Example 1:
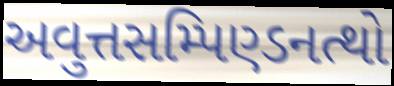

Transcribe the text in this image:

અવુત્તસમ્પિણ્ડનત્થો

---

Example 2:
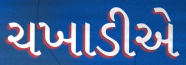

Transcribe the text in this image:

ચખાડીએ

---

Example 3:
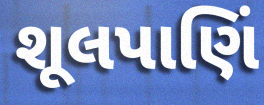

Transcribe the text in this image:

શૂલપાણિં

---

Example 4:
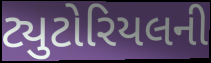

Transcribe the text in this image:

ટ્યુટોરિયલની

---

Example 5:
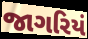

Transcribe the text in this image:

જાગરિયં